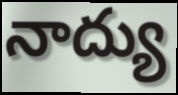
నాద్యు